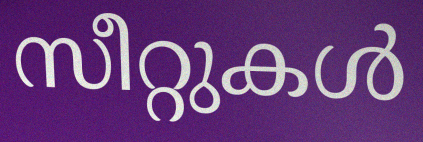
സീറ്റുകൾ